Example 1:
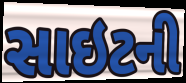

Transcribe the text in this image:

સાઇટની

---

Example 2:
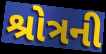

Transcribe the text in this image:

શ્રોત્રની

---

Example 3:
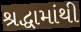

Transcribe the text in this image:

શ્રદ્ધામાંથી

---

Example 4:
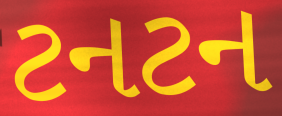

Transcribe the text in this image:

ટનટન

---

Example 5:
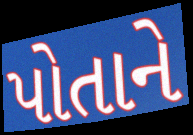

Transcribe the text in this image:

પોતાને